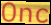
Onc